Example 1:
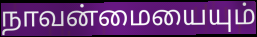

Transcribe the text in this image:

நாவன்மையையும்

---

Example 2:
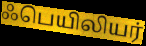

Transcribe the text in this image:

ஃபெயிலியர்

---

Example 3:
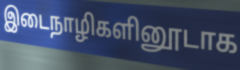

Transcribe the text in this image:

இடைநாழிகளினூடாக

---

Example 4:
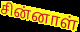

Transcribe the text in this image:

சின்னாள்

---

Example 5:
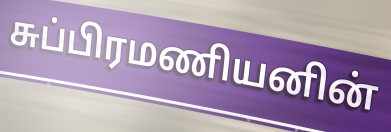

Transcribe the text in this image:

சுப்பிரமணியனின்